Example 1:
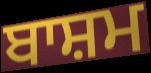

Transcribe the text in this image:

ਬਾਸ਼ਮ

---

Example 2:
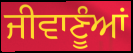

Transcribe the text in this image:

ਜੀਵਾਣੂੰਆਂ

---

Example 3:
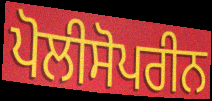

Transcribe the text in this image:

ਪੋਲੀਸੋਪਰੀਨ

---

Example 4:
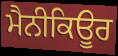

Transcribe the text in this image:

ਮੈਨੀਕਿਊਰ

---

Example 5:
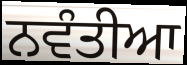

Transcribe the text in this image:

ਨਵੰਤੀਆ